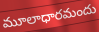
మూలాధారమందు